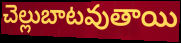
చెల్లుబాటవుతాయి